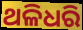
ଥଳିଧରି